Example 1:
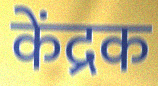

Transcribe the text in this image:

केंद्रक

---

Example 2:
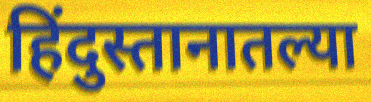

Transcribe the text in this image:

हिंदुस्तानातल्या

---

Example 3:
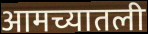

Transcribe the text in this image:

आमच्यातली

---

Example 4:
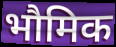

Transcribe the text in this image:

भौमिक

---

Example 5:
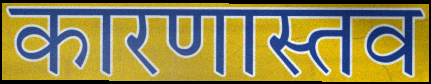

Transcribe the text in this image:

कारणास्तव